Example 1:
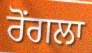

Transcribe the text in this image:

ਰੋਂਗਲਾ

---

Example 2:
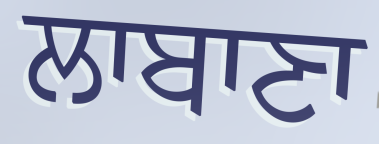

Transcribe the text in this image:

ਲਾਬਾਣਾ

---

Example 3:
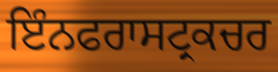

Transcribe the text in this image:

ਇੰਨਫਰਾਸਟ੍ਰਕਚਰ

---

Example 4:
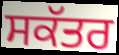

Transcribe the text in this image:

ਸਕੱਤਰ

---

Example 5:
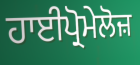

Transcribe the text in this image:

ਹਾਈਪ੍ਰੋਮੇਲੋਜ਼